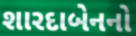
શારદાબેનનો